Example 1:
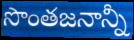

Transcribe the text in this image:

సొంతజనాన్నీ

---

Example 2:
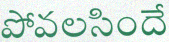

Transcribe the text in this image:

పోవలసిందే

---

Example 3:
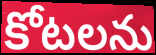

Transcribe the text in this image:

కోటలను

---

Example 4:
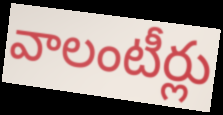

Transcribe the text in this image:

వాలంటీర్లు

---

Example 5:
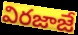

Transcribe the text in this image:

విరజాజే